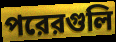
পরেরগুলি